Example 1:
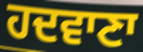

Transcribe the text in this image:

ਹਦਵਾਣਾ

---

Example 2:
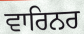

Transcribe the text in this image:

ਵਾਰਿਨਰ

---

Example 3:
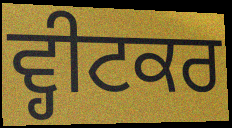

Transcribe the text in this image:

ਵ੍ਹੀਟਕਰ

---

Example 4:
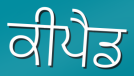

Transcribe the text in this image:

ਕੀਪੈਡ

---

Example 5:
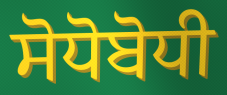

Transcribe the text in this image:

ਸੋਧੋਬੋਧੀ